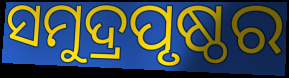
ସମୁଦ୍ରପୃଷ୍ଠର